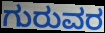
ಗುರುವರ